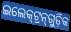
ଇଲେକ୍‍ଟ୍ରନ୍‍ଗୁଡ଼ିକ